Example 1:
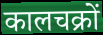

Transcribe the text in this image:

कालचक्रों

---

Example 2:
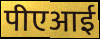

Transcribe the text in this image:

पीएआई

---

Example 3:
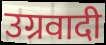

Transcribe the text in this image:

उग्रवादी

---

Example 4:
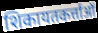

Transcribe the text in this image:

शिकायतकर्त्ताओं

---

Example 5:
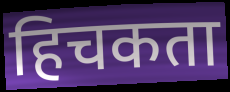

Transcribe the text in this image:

हिचकता